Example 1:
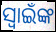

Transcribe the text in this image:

ସ୍ଵାଇଁଙ୍କ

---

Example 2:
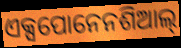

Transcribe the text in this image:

ଏକ୍ସପୋନେନଶିଆଲ୍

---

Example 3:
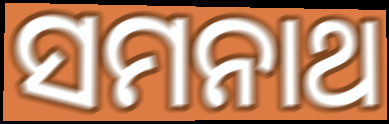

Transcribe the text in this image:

ସମନାଥ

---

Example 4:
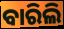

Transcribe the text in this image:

ବାରିଲି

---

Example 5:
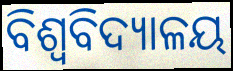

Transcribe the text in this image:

ବିଶ୍ଵବିଦ୍ୟାଳୟ